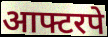
आफ्टरपे